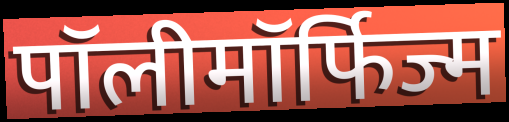
पॉलीमॉर्फिज्म